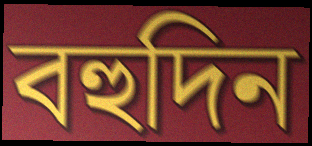
বহুদিন